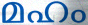
മഹം